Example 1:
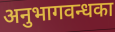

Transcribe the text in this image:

अनुभागवन्धका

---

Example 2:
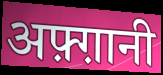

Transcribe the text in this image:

अफ़्ग़ानी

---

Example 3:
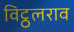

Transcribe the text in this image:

विट्ठलराव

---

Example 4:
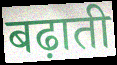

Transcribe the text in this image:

बढ़ाती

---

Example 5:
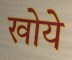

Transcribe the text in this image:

खोये